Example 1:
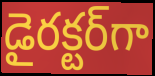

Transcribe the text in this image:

డైరక్టర్‌గా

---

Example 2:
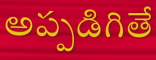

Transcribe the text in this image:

అప్పడిగితే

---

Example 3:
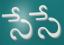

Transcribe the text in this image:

సేసే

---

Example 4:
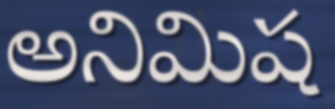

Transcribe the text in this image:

అనిమిష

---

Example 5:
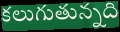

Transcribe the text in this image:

కలుగుతున్నది